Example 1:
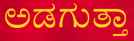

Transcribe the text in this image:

ಅಡಗುತ್ತಾ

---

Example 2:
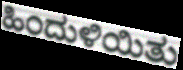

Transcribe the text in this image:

ಹಿಂದುಳಿಯಿತು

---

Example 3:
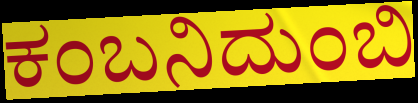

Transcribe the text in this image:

ಕಂಬನಿದುಂಬಿ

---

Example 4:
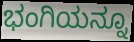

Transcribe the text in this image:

ಭಂಗಿಯನ್ನೂ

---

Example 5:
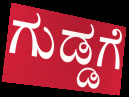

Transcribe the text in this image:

ಗುಡ್ಡಗೆ